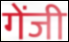
गेंजी